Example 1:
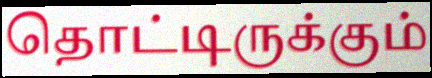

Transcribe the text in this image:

தொட்டிருக்கும்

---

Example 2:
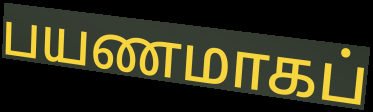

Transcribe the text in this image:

பயணமாகப்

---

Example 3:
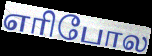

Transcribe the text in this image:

எரிபோல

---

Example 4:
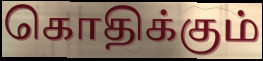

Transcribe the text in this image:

கொதிக்கும்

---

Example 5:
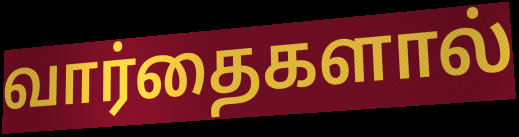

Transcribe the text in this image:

வார்தைகளால்